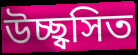
উচ্ছ্বসিত